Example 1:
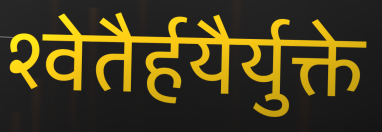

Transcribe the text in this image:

श्वेतैर्हयैर्युक्ते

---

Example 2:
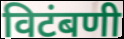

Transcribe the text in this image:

विटंबणी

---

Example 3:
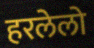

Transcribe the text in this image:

हरलेलो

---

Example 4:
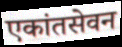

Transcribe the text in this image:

एकांतसेवन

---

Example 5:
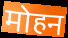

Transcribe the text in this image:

मोहन